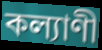
কল্যাণী